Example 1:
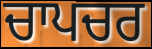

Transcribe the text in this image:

ਚਾਪਚਰ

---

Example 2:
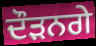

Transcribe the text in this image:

ਦੌੜਨਗੇ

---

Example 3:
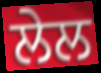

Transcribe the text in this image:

ਲੇਲ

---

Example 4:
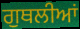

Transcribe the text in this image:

ਗੁਥਲੀਆਂ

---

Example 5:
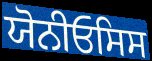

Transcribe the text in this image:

ਯੋਨੀਓਸਿਸ